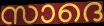
സാദെ